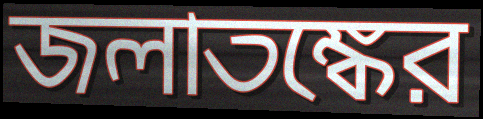
জলাতঙ্কের